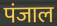
पंजाल